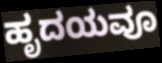
ಹೃದಯವೂ